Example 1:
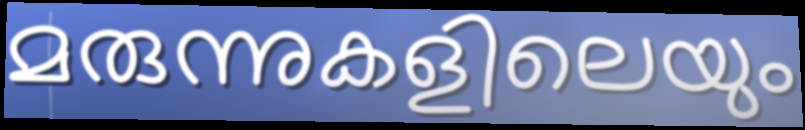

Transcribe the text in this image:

മരുന്നുകളിലെയും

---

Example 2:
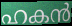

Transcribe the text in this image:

ഹകൻ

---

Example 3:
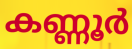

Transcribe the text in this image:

കണ്ണൂർ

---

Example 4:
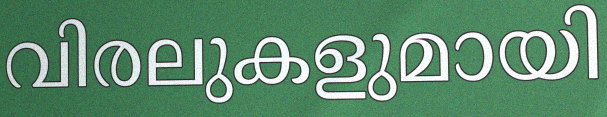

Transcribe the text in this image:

വിരലുകളുമായി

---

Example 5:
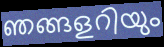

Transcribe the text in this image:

ഞങ്ങളറിയും